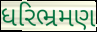
ધરિભ્રમણ